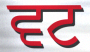
ਵਟ